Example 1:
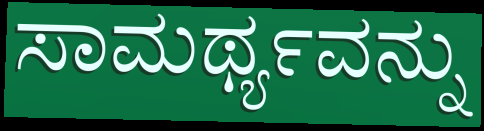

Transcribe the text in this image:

ಸಾಮರ್ಥ್ಯವನ್ನು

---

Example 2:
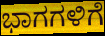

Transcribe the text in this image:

ಭಾಗಗಳಿಗೆ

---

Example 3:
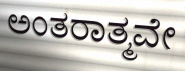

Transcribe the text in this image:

ಅಂತರಾತ್ಮವೇ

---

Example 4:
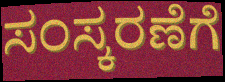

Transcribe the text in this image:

ಸಂಸ್ಕರಣೆಗೆ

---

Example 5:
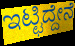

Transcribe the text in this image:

ಇಟ್ಟಿದ್ದೇನೆ